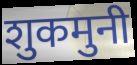
शुकमुनी